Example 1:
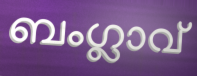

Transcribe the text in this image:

ബംഗ്ലാവ്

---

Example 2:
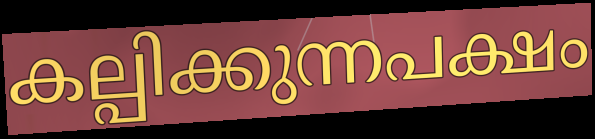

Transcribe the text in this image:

കല്പിക്കുന്നപക്ഷം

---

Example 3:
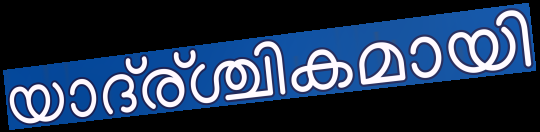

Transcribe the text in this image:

യാദ്ര്ശ്ചികമായി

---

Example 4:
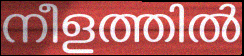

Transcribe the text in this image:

നീളത്തിൽ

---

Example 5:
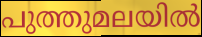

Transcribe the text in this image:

പുത്തുമലയിൽ